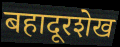
बहादूरशेख